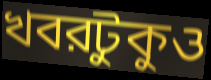
খবরটুকুও